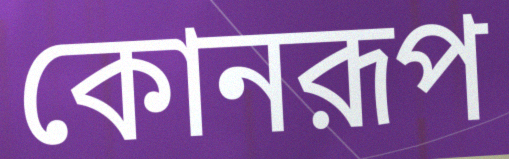
কোনরূপ